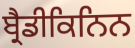
ਬ੍ਰੈਡੀਕਿਨਿਨ